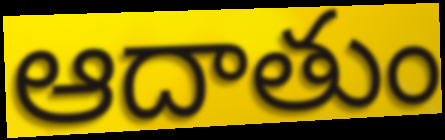
ఆదాతుం